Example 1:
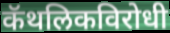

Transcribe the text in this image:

कॅथलिकविरोधी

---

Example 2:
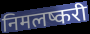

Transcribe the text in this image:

निमलष्करी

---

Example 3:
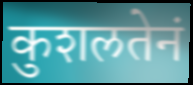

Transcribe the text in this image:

कुशलतेनं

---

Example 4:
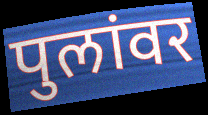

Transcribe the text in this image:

पुलांवर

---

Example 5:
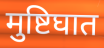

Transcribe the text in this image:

मुष्टिघात